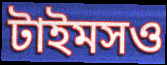
টাইমসও